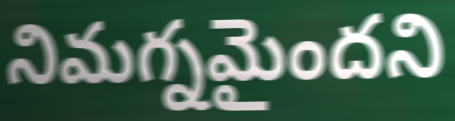
నిమగ్నమైందని